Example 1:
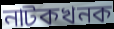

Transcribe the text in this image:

নাটকখনক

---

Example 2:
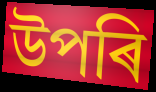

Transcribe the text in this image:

উপৰি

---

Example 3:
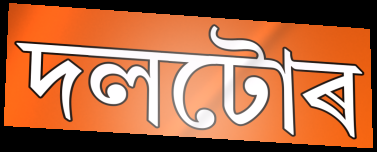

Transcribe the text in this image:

দলটোৰ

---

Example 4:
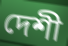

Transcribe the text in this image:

দেশী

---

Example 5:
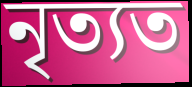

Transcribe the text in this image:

নৃত্যত